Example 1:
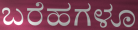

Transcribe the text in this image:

ಬರೆಹಗಳೂ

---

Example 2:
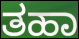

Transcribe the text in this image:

ತಹಾ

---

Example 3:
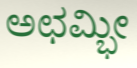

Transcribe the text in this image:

ಅಛಮ್ಭೀ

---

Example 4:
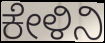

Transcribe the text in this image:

ಕೇಳಿನಿ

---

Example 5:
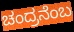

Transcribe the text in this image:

ಚಂದ್ರನೆಂಬ